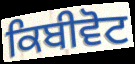
ਕਿਬੀਵੋਟ